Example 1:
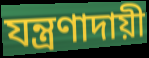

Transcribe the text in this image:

যন্ত্রণাদায়ী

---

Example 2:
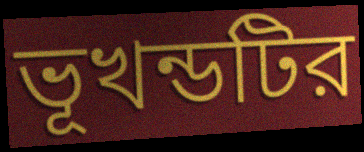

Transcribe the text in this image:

ভূখন্ডটির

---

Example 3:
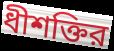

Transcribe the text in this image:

ধীশক্তির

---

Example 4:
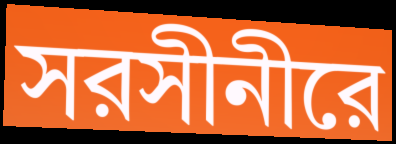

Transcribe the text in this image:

সরসীনীরে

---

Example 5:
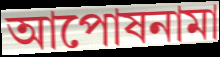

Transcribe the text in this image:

আপোষনামা